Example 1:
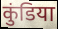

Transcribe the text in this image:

कुंडिया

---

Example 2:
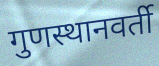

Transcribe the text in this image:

गुणस्थानवर्ती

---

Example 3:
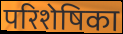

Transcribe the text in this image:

परिशेषिका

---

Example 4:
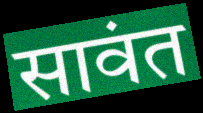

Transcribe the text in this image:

सावंत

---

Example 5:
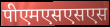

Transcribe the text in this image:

पीएमएसएसएस